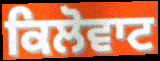
ਕਿਲੋਵਾਟ